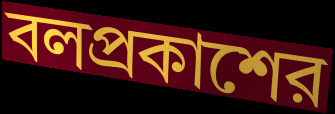
বলপ্রকাশের